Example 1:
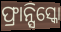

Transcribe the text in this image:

ଫ୍ରାନ୍ସିସ୍କୋ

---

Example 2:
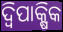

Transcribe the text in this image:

ଦ୍ବିପାକ୍ଷିକ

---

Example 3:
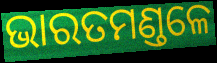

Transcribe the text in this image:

ଭାରତମଣ୍ଡଳେ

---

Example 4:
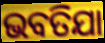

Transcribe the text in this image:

ଭବତିଯା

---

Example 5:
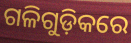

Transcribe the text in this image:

ଗଳିଗୁଡ଼ିକରେ